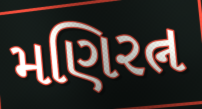
મણિરત્ન